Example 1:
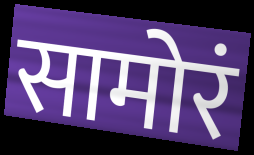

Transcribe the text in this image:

सामोरं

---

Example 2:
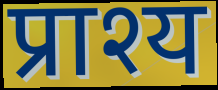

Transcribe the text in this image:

प्राश्य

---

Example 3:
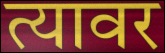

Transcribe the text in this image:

त्यावर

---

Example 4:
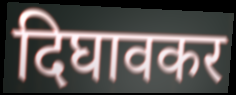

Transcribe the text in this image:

दिघावकर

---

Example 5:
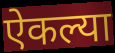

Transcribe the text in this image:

ऐकल्या